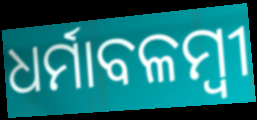
ଧର୍ମାବଳମ୍ବୀ